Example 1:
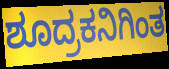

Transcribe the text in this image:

ಶೂದ್ರಕನಿಗಿಂತ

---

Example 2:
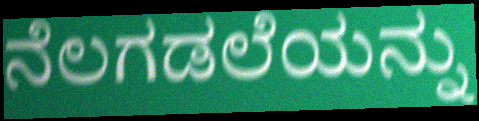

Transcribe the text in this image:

ನೆಲಗಡಲೆಯನ್ನು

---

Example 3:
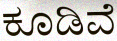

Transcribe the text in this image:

ಕೂಡಿವೆ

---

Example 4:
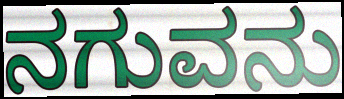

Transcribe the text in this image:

ನಗುವನು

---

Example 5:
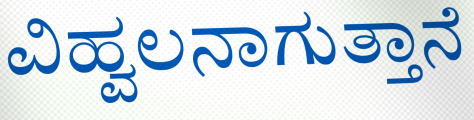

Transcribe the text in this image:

ವಿಹ್ವಲನಾಗುತ್ತಾನೆ